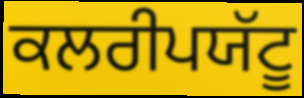
ਕਲਰੀਪਯੱਟੂ